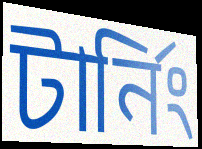
টার্নিং